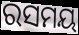
ରସମୟ